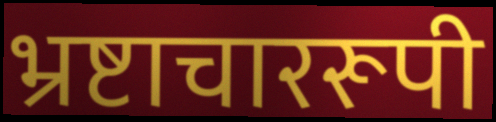
भ्रष्टाचाररूपी